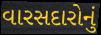
વારસદારોનું